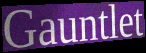
Gauntlet